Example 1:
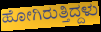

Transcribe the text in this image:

ಹೋಗಿರುತ್ತಿದ್ದಳು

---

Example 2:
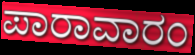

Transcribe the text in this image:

ಪಾರಾವಾರಂ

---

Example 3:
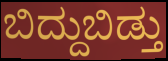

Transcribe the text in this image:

ಬಿದ್ದುಬಿಡ್ತು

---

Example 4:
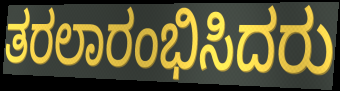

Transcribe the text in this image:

ತರಲಾರಂಭಿಸಿದರು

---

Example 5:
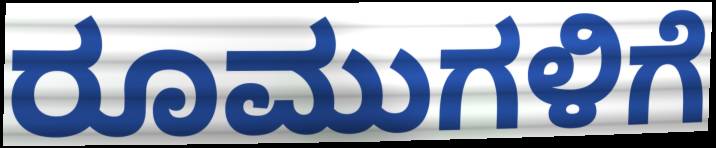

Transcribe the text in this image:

ರೂಮುಗಳಿಗೆ